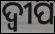
ଦ୍ବୀପ